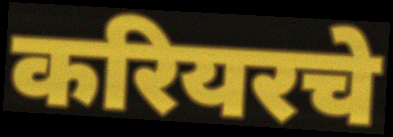
करियरचे